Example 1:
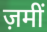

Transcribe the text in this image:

ज़मीं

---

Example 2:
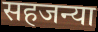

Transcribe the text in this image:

सहजन्या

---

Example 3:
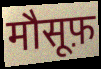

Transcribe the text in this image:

मौसूफ़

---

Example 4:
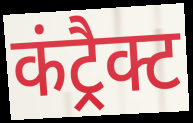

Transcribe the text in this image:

कंट्रैक्ट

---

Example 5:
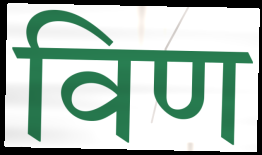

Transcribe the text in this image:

विण